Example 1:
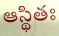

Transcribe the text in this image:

ఆస్థితః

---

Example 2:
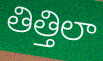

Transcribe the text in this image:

తిత్తిలా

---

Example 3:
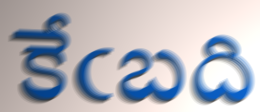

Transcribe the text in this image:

కేఁబది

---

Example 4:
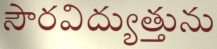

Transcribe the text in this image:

సౌరవిద్యుత్తును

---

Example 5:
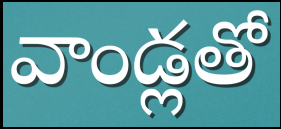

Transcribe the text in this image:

వాండ్లతో